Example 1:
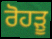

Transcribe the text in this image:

ਰੋਹੜੂ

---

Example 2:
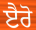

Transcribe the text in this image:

ੲੈਰੋ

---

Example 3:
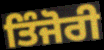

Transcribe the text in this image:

ਤਿੰਜੋਰੀ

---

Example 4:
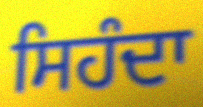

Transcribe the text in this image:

ਸਿਹੰਦਾ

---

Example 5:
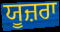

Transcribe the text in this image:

ਯੂਜ਼ਰਾ